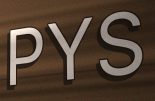
PYS